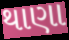
થાણા